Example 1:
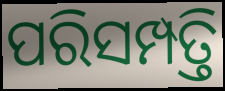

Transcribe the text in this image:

ପରିସମ୍ପତ୍ତି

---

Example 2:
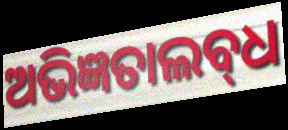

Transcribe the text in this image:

ଅଭିଜ୍ଞତାଲବ୍‌ଧ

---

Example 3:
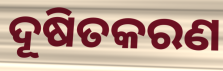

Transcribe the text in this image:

ଦୂଷିତକରଣ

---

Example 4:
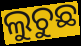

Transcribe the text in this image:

ଲୁଚୁଛ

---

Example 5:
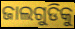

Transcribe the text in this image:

ଜାଲଗୁଡିକୁ